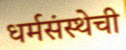
धर्मसंस्थेची